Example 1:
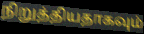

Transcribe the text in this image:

நிறுத்தியதாகவும்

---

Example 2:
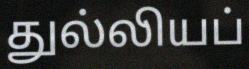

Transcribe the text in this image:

துல்லியப்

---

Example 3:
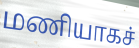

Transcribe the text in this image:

மணியாகச்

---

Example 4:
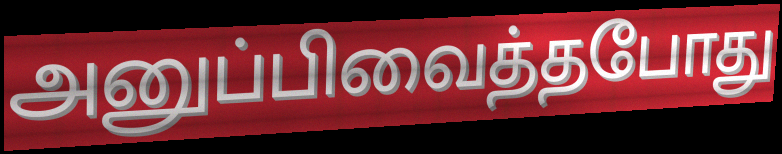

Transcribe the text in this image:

அனுப்பிவைத்தபோது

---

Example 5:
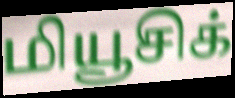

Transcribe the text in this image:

மியூசிக்